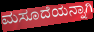
ಮಸೂದೆಯನ್ನಾಗಿ